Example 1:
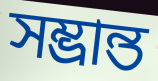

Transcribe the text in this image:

সম্ভ্রান্ত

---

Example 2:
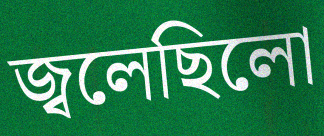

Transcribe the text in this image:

জ্বলেছিলো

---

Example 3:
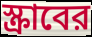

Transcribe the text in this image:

স্ক্রাবের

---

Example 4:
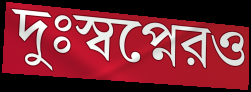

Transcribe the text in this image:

দুঃস্বপ্নেরও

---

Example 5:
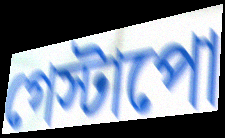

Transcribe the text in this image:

গেস্টাপো